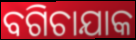
ବଗିଚାଯାକ